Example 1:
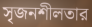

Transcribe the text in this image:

সৃজনশীলতার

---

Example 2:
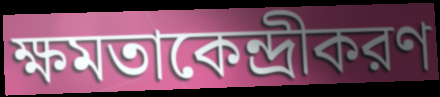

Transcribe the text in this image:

ক্ষমতাকেন্দ্রীকরণ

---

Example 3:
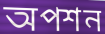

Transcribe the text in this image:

অপশন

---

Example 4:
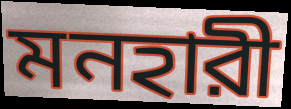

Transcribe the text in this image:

মনহারী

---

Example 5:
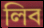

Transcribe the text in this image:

লিব